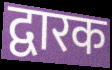
द्वारक